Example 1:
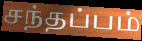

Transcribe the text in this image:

சந்தப்பம்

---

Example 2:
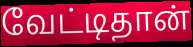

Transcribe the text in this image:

வேட்டிதான்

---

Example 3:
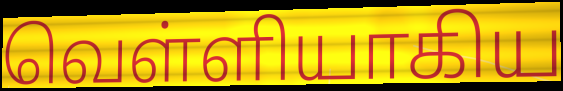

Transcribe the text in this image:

வெள்ளியாகிய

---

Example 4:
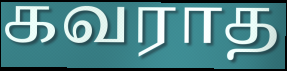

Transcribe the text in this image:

கவராத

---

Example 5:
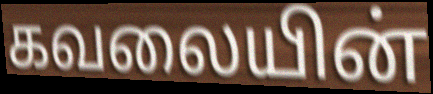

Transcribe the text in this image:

கவலையின்